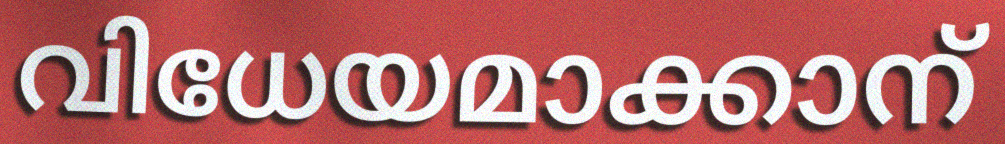
വിധേയമാക്കാന്